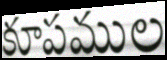
కూపముల